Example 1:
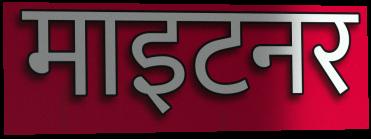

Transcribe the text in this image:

माइटनर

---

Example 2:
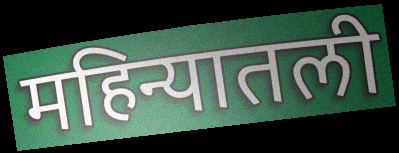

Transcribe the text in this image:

महिन्यातली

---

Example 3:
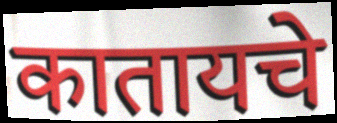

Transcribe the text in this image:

कातायचे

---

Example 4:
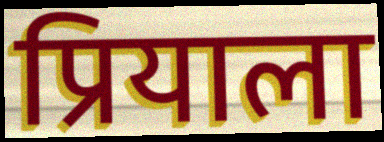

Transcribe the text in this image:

प्रियाला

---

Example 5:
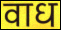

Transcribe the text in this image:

वाध